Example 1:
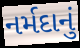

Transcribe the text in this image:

નર્મદાનું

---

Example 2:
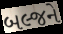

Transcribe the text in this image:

બલ્જને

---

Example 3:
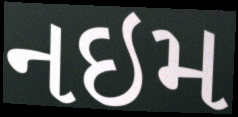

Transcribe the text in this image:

નઇમ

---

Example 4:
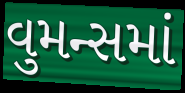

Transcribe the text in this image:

વુમન્સમાં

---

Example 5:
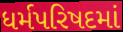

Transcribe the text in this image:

ધર્મપરિષદમાં